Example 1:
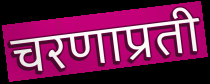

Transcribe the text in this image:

चरणाप्रती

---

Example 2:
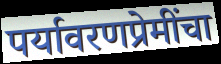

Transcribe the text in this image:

पर्यावरणप्रेमींचा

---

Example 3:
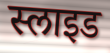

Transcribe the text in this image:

स्लाइड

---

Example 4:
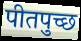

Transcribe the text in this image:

पीतपुच्छ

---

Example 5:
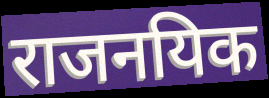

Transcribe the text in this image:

राजनयिक